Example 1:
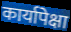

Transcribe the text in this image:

कार्यापेक्षा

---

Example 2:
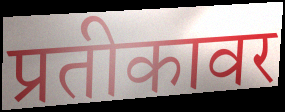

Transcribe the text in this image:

प्रतीकावर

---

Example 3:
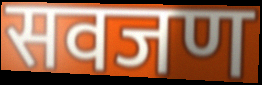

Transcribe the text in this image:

सवजण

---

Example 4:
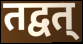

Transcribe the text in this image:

तद्वत्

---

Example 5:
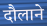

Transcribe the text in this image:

दौलाने